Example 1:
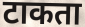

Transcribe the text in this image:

टाकता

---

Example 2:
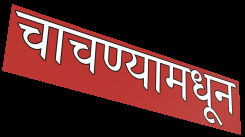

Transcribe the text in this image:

चाचण्यामधून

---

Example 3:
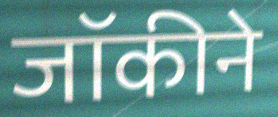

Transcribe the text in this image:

जॉकीने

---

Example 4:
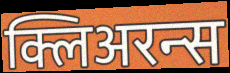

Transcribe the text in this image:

क्लिअरन्स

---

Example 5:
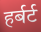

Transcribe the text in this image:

हर्बर्ट